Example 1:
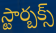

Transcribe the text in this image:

స్టార్బక్స్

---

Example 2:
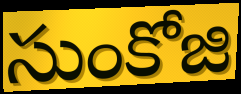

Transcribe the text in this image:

సుంకోజి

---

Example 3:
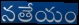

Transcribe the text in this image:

నతేయం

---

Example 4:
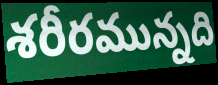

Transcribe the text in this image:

శరీరమున్నది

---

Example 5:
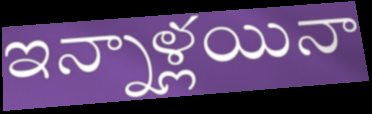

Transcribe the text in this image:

ఇన్నాళ్లయినా